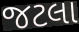
જટલા